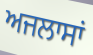
ਅਜਲਾਸਾਂ